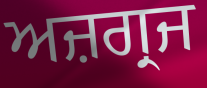
ਅਜ਼ਗ੍ਰਜ